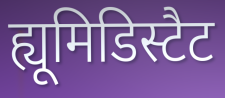
ह्यूमिडिस्टैट